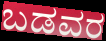
ಬಡವರ